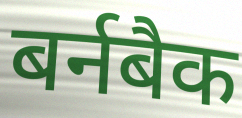
बर्नबैक